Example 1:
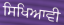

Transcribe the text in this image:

ਸਿਖਿਆਵੀ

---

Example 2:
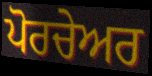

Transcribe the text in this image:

ਪੋਰਚੇਅਰ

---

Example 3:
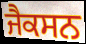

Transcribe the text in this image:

ਜੈਕਸਨ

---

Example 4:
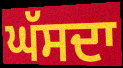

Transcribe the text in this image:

ਘੱਸਦਾ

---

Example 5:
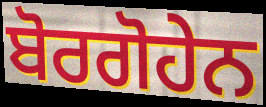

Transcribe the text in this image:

ਬੋਰਗੋਹੇਨ